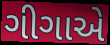
ગીગાએ